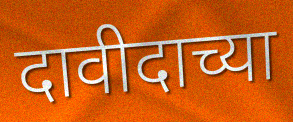
दावीदाच्या